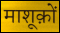
माशूक़ों